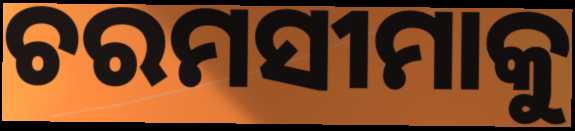
ଚରମସୀମାକୁ